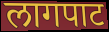
लागपाट